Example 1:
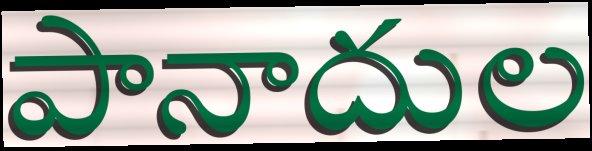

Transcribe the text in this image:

పానాదుల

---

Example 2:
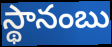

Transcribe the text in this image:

స్థానంబు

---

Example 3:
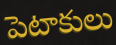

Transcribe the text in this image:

పెటాకులు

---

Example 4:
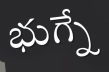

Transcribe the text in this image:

భుగ్నే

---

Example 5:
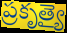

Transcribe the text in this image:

ప్రకృత్యై